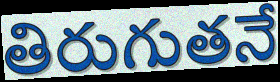
తిరుగుతనే